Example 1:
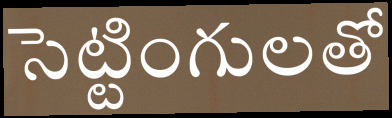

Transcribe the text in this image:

సెట్టింగులతో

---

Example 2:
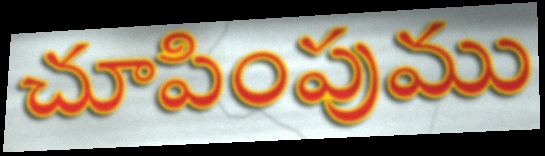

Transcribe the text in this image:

చూపింపుము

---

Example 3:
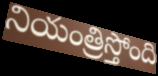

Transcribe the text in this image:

నియంత్రిస్తోంది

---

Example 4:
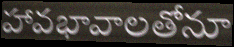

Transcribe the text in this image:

హావభావాలతోనూ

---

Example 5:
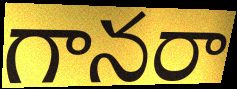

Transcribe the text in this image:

గానరా